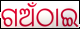
ଗଅଁଠାଇ